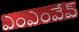
ఎంఎంవేవ్